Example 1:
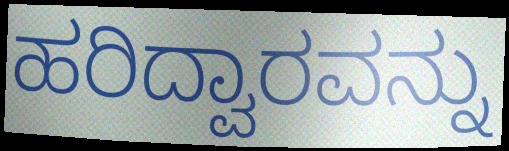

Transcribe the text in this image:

ಹರಿದ್ವಾರವನ್ನು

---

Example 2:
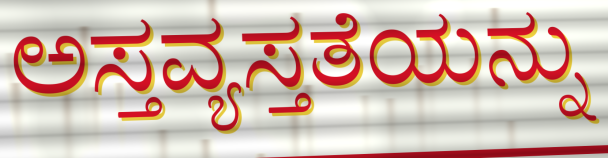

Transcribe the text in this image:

ಅಸ್ತವ್ಯಸ್ತತೆಯನ್ನು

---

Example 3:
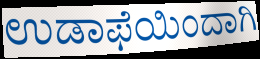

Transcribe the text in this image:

ಉಡಾಫೆಯಿಂದಾಗಿ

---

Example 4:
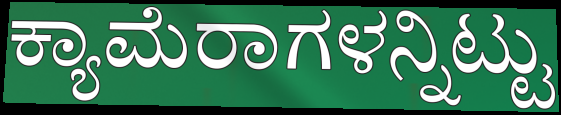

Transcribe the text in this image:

ಕ್ಯಾಮೆರಾಗಳನ್ನಿಟ್ಟು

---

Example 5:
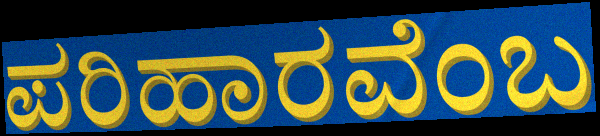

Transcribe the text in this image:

ಪರಿಹಾರವೆಂಬ